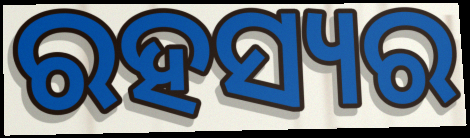
ରହସ୍ୟର